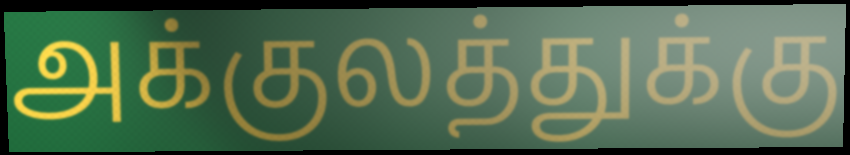
அக்குலத்துக்கு